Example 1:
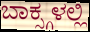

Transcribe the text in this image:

ಬಾಕ್ಸ್ಗಳಲ್ಲಿ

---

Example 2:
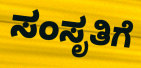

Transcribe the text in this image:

ಸಂಸೃತಿಗೆ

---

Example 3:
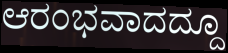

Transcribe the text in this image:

ಆರಂಭವಾದದ್ದೂ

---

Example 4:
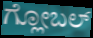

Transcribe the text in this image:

ಗ್ಲೋಬಲ್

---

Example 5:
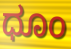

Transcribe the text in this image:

ಧೂಂ